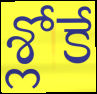
శ్లోకే